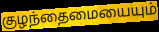
குழந்தைமையையும்